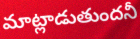
మాట్లాడుతుందనీ